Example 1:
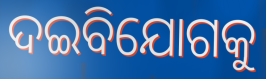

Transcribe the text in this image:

ଦଇବିଯୋଗକୁ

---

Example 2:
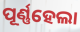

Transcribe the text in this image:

ପୂର୍ଣ୍ଣହେଲା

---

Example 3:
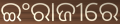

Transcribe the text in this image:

ଇଂରାଜୀରେ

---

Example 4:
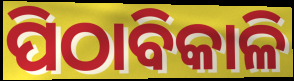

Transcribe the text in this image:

ପିଠାବିକାଳି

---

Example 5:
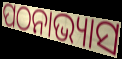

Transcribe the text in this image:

ପଠନାଭ୍ୟାସ